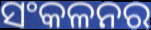
ସଂକଳନର